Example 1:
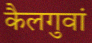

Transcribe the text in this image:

कैलगुवां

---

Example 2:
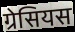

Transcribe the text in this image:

ग्रेसियस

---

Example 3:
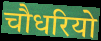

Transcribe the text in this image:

चौधरियो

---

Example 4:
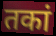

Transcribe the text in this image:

तकां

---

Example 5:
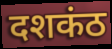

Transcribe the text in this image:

दशकंठ